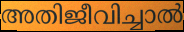
അതിജീവിച്ചാൽ